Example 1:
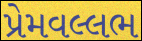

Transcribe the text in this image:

પ્રેમવલ્લભ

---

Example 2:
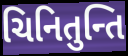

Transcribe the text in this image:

ચિનિતુન્તિ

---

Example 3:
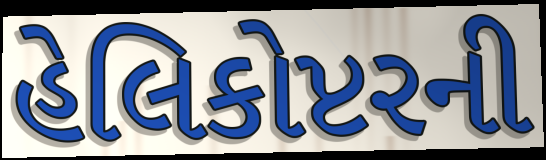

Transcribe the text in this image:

હેલિકોપ્ટરની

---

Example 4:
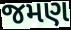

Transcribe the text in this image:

જમણ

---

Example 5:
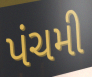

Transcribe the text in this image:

પંચમી